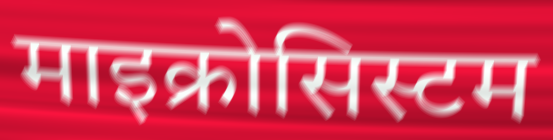
माइक्रोसिस्टम